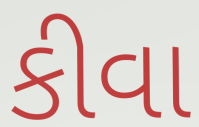
કીવા